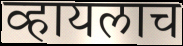
व्हायलाच